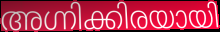
അഗ്നിക്കിരയായി